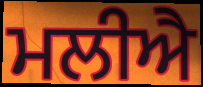
ਮਲੀਐ